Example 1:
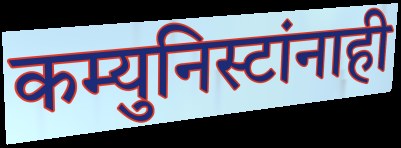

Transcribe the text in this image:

कम्युनिस्टांनाही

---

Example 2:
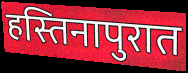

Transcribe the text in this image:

हस्तिनापुरात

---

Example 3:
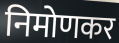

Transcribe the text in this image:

निमोणकर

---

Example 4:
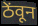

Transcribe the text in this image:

ठेंवून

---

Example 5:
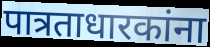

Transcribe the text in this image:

पात्रताधारकांना